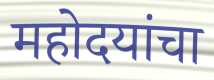
महोदयांचा